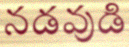
నడవుడి